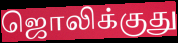
ஜொலிக்குது